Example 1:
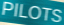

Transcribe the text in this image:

PILOTS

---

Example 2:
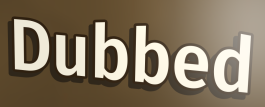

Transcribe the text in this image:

Dubbed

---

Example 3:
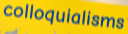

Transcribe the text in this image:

colloquialisms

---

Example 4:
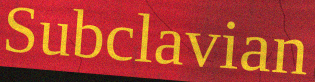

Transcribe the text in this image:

Subclavian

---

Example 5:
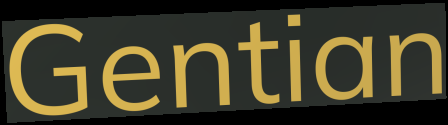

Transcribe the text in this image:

Gentian